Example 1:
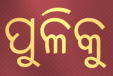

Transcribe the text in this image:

ପୁଳିକୁ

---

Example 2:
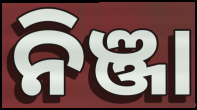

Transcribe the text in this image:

ନିଞ୍ଜା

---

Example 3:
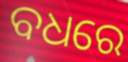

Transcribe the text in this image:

ବଧରେ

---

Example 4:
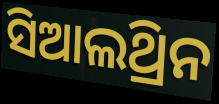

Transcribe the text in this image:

ସିଆଲଥ୍ରିନ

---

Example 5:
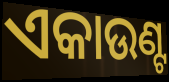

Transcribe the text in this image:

ଏକାଉଣ୍ଟ